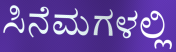
ಸಿನೆಮಗಳಲ್ಲಿ